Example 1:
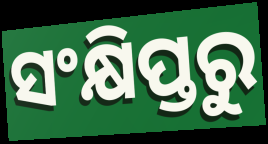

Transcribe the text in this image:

ସଂକ୍ଷିପ୍ତରୁ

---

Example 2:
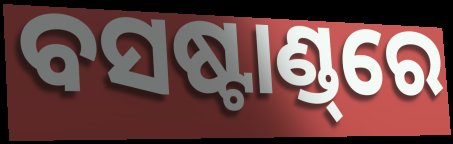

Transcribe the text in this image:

ବସଷ୍ଟାଣ୍ଡ୍‌ରେ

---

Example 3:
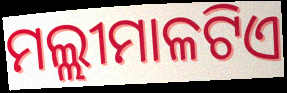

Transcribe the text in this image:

ମଲ୍ଲୀମାଳଟିଏ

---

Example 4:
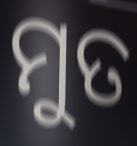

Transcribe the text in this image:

ମୁତ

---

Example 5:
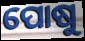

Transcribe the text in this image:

ପୋଷୁ